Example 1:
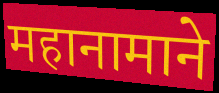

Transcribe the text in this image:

महानामाने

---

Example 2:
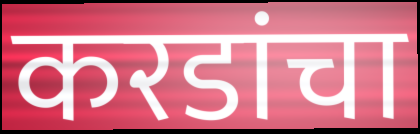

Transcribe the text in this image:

करडांचा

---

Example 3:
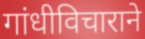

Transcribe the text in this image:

गांधीविचाराने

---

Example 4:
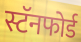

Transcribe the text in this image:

स्टॅनफोर्ड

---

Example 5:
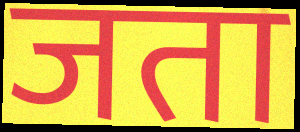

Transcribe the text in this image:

जता